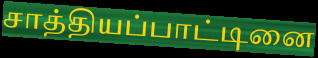
சாத்தியப்பாட்டினை